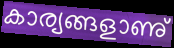
കാര്യങ്ങളാണു്